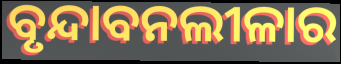
ବୃନ୍ଦାବନଲୀଳାର